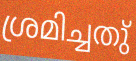
ശ്രമിച്ചതു്